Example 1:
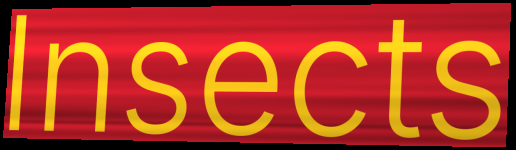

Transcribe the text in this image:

Insects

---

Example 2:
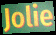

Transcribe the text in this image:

Jolie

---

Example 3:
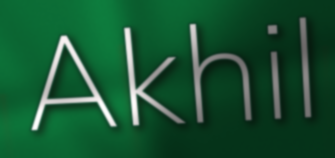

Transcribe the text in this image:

Akhil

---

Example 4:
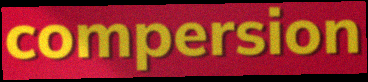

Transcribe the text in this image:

compersion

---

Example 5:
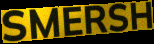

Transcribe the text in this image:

SMERSH